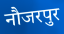
नौजरपुर